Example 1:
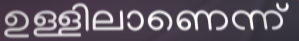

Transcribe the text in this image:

ഉള്ളിലാണെന്ന്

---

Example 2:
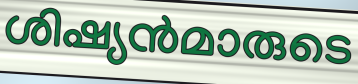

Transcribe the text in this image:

ശിഷ്യൻമാരുടെ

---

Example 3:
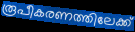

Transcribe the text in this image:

രൂപീകരണത്തിലേക്ക്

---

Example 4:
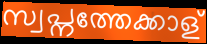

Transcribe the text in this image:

സ്വപ്നത്തേക്കാള്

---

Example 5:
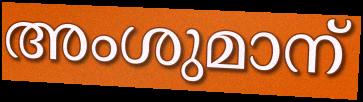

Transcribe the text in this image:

അംശുമാന്